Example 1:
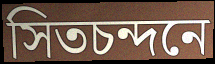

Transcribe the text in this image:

সিতচন্দনে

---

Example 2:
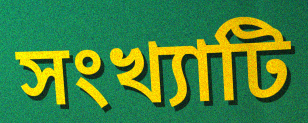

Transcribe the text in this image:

সংখ্যাটি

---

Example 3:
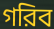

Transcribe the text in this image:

গরিব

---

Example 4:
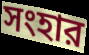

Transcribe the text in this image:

সংহার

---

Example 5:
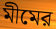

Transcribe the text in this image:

মীমের